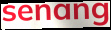
senang